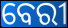
ବେରୀ